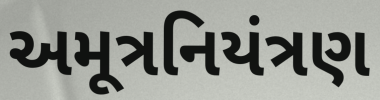
અમૂત્રનિયંત્રણ